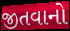
જીતવાનો